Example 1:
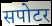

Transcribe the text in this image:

सपोटर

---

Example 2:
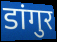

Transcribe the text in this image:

डांगुर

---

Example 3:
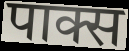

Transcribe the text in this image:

पाक्स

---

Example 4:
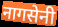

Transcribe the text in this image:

नागसेनी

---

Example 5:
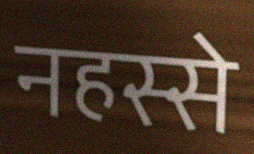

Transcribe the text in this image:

नहस्से